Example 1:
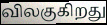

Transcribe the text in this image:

விலகுகிறது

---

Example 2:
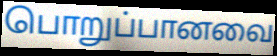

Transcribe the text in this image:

பொறுப்பானவை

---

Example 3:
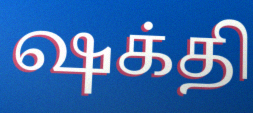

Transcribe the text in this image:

ஷக்தி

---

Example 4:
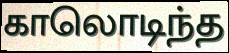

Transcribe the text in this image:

காலொடிந்த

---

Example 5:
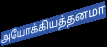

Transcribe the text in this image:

அயோக்கியத்தனமா